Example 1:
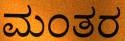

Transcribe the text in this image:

ಮಂತರ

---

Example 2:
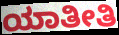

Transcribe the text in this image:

ಯಾತೀತಿ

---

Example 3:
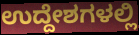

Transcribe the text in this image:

ಉದ್ದೇಶಗಳಲ್ಲಿ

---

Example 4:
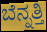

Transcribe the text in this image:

ಬೆನ್ನತ್ತಿ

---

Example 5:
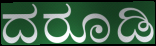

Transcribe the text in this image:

ದರೂಡಿ